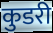
कुडरी